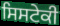
ਸਿਸਟੇਕੀ